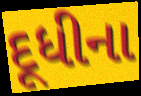
દૂધીના